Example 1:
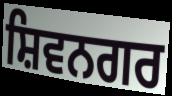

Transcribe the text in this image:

ਸ਼ਿਵਨਗਰ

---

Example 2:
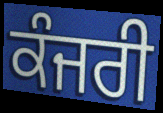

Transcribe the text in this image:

ਕੰਜਰੀ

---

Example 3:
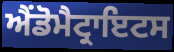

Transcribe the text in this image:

ਐਂਡੋਮੈਟ੍ਰਾਇਟਸ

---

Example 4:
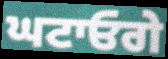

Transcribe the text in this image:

ਘਟਾਓਗੇ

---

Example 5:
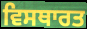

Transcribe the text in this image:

ਵਿਸਥਾਰਤ